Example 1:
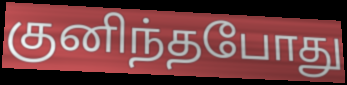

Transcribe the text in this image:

குனிந்தபோது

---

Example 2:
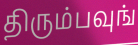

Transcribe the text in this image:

திரும்பவுங்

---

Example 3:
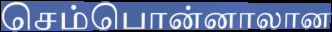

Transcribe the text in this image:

செம்பொன்னாலான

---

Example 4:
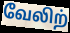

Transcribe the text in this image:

வேலிற்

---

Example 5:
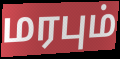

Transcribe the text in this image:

மரபும்